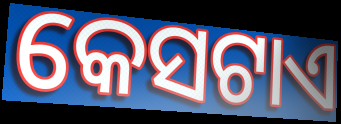
କେସଟାଏ